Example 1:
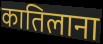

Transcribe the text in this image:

कातिलाना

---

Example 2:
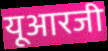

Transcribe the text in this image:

यूआरजी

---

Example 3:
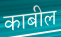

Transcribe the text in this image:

काबील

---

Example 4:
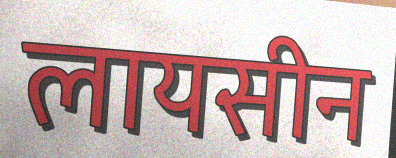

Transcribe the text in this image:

लायसीन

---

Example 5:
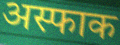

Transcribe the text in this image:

अस्फाक